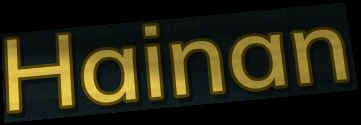
Hainan